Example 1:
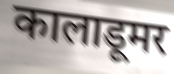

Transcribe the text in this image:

कालाडूमर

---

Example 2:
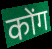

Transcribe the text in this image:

कोंग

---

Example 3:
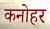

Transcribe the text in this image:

कनोहर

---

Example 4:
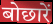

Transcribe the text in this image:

बोछारें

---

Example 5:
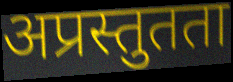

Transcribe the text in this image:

अप्रस्तुतता